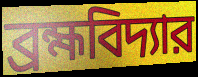
ব্রহ্মবিদ্যার